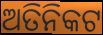
ଅତିନିକଟ